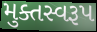
મુક્તસ્વરૂપ